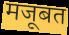
मजूबत